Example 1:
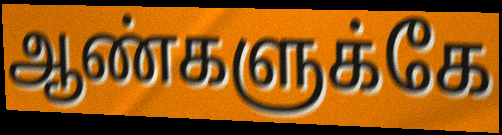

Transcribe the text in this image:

ஆண்களுக்கே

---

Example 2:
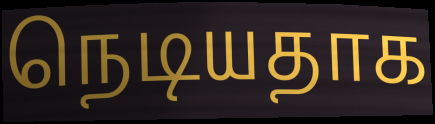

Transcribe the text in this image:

நெடியதாக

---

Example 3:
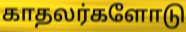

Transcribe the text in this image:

காதலர்களோடு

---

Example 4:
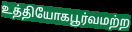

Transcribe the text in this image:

உத்தியோகபூர்வமற்ற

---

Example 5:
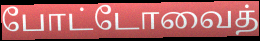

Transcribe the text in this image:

போட்டோவைத்